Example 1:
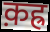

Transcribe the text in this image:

क़ह्र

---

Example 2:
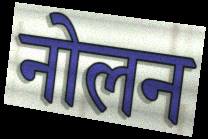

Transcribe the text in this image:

नोलन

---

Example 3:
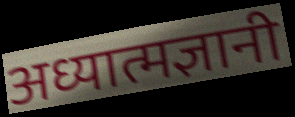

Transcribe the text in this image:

अध्यात्मज्ञानी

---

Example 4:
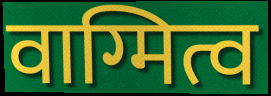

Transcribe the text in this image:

वाग्मित्व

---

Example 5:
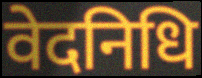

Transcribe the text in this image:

वेदनिधि